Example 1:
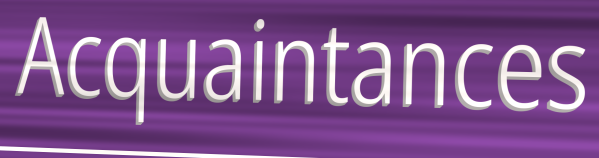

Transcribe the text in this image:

Acquaintances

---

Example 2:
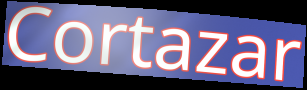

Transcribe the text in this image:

Cortazar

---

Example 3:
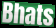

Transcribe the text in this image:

Bhats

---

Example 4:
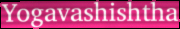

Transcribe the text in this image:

Yogavashishtha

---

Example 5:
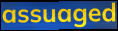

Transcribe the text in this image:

assuaged